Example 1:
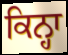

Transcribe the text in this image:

ਕਿਨ੍ਹਾ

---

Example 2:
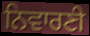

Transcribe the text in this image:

ਨਿਵਾਰਣੀ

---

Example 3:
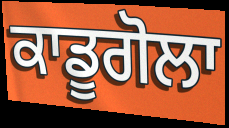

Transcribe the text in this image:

ਕਾਡੂਗੋਲਾ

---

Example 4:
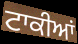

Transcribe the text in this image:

ਟਾਕੀਆਂ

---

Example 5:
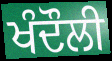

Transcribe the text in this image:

ਖੰਦੌਲੀ